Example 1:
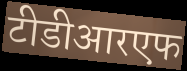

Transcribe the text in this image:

टीडीआरएफ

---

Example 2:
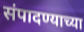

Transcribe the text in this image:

संपादण्याच्या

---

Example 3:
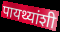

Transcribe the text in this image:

पायथ्यांशी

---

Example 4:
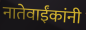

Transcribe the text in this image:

नातेवाईंकांनी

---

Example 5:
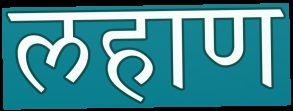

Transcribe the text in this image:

लहाण